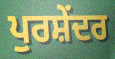
ਪੁਰਸ਼ੇਂਦਰ